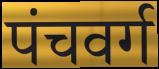
पंचवर्ग